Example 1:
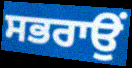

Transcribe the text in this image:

ਸਭਰਾਉਂ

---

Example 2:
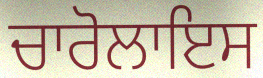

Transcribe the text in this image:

ਚਾਰੋਲਾਇਸ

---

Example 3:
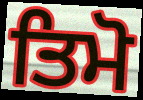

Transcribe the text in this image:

ਤਿਮੋ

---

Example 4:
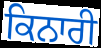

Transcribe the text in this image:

ਕਿਨਾਰੀ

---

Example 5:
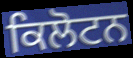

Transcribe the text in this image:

ਕਿਲੋਟਨ